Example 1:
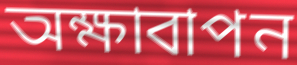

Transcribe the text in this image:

অক্ষাবাপন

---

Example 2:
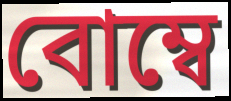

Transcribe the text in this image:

বোম্বে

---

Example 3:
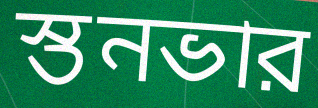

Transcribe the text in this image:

স্তনভার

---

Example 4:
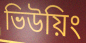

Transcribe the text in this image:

ভিউয়িং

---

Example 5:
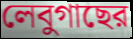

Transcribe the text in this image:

লেবুগাছের